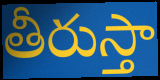
తీరుస్తా